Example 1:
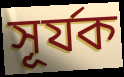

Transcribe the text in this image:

সূৰ্যক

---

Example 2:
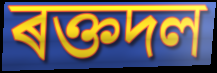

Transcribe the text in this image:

ৰক্তদল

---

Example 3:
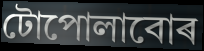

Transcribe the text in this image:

টোপোলাবোৰ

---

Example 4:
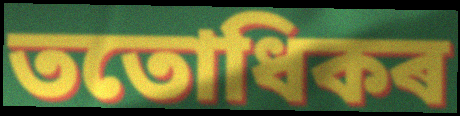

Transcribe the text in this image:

ততোধিকৰ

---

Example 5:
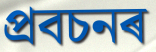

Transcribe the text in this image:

প্ৰবচনৰ